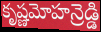
కృష్ణమోహన్రెడ్డి